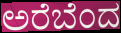
ಅರೆಬೆಂದ